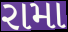
રામા